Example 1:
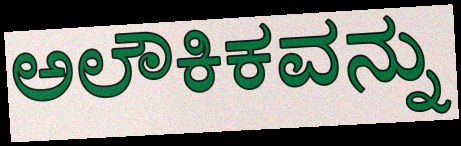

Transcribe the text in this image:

ಅಲೌಕಿಕವನ್ನು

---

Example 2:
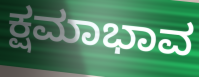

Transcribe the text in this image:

ಕ್ಷಮಾಭಾವ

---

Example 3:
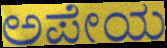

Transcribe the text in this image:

ಅಪೇಯ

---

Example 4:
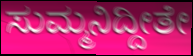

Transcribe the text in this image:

ಸುಮ್ಮನಿದ್ದೀತೇ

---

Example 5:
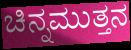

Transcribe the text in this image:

ಚಿನ್ನಮುತ್ತನ